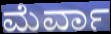
ಮೆರ್ವಾ